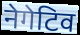
नेगेटिव